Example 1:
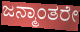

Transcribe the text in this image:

ಜನ್ಮಾಂತರೇ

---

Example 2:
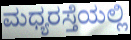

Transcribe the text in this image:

ಮಧ್ಯರಸ್ತೆಯಲ್ಲಿ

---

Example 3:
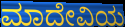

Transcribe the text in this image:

ಮಾದೇವಿಯ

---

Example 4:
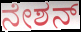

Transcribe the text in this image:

ನೇಶನ್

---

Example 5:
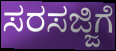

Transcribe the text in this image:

ಸರಸಜ್ಜಿಗೆ